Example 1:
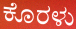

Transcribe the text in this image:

ಕೊರಳು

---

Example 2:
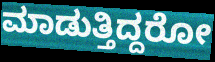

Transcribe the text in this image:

ಮಾಡುತ್ತಿದ್ದರೋ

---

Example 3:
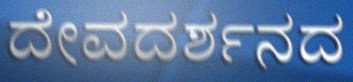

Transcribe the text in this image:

ದೇವದರ್ಶನದ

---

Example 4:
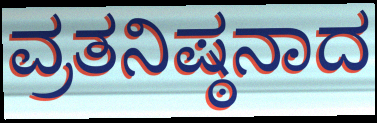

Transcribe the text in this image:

ವ್ರತನಿಷ್ಠನಾದ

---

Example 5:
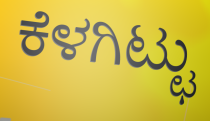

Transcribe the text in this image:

ಕೆಳಗಿಟ್ಟು